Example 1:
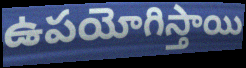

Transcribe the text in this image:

ఉపయోగిస్తాయి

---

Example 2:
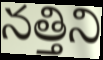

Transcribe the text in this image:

నత్తిని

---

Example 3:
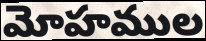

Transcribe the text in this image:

మోహముల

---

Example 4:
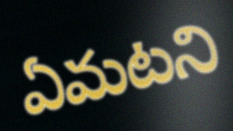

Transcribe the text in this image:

ఏమటని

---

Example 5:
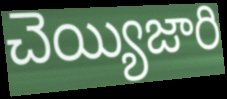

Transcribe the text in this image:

చెయ్యిజారి